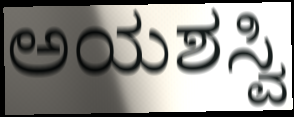
ಅಯಶಸ್ವಿ